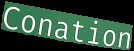
Conation